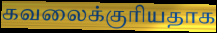
கவலைக்குரியதாக